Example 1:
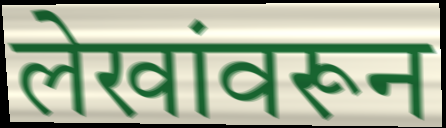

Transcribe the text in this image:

लेखांवरून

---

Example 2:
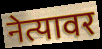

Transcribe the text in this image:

नेत्यावर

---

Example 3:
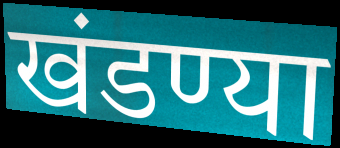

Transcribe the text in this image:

खंडण्या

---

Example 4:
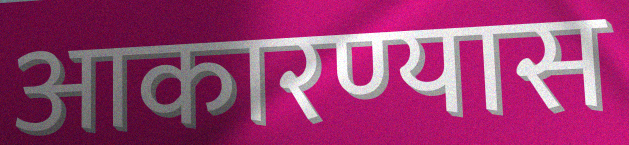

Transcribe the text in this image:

आकारण्यास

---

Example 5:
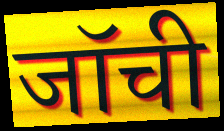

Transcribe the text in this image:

जॉची